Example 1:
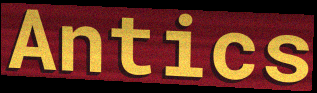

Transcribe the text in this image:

Antics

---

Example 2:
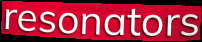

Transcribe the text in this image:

resonators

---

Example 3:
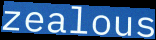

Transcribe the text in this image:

zealous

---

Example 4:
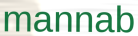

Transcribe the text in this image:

mannab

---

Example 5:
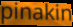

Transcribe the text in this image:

pinakin